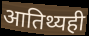
आतिथ्यही